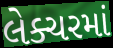
લેક્ચરમાં